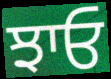
ਝਾਓ